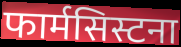
फार्मसिस्टना